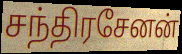
சந்திரசேனன்